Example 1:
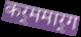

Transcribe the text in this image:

कर्ममार्ग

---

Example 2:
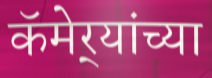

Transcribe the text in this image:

कॅमेर्यांच्या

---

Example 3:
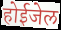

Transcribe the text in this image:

होईजेल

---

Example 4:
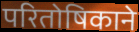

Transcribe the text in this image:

परितोषिकाने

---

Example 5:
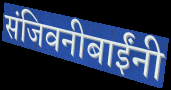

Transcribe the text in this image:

संजिवनीबाईंनी